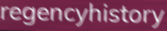
regencyhistory